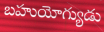
బహుయోగ్యుడు